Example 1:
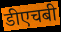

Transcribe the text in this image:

डीएचबी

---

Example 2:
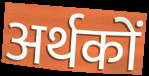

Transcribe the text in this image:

अर्थकों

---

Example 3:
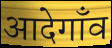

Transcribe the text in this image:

आदेगाँव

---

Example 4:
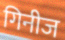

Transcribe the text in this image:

गिनीज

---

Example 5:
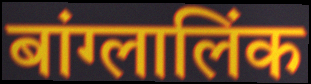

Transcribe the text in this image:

बांग्लालिंक